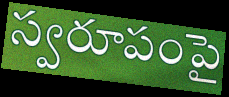
స్వరూపంపై